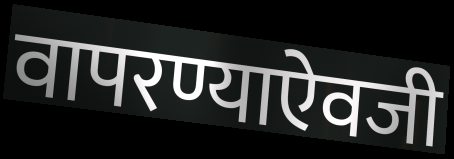
वापरण्याऐवजी